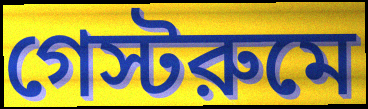
গেস্টরুমে